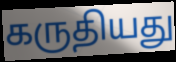
கருதியது